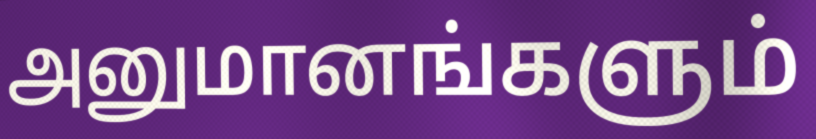
அனுமானங்களும்